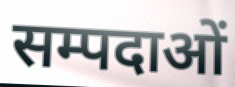
सम्पदाओं